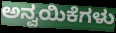
ಅನ್ವಯಿಕೆಗಳು